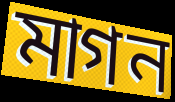
মাগন